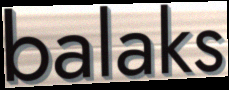
balaks